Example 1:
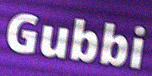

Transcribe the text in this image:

Gubbi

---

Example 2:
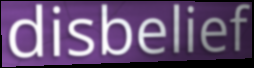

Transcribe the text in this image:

disbelief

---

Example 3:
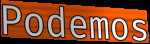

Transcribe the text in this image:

Podemos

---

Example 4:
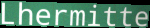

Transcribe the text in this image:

Lhermitte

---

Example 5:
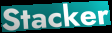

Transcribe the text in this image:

Stacker